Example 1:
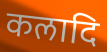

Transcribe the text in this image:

कलादि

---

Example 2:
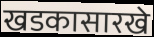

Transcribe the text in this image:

खडकासारखे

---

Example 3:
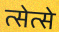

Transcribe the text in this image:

त्सेत्से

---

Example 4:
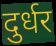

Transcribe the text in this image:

दुर्धर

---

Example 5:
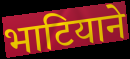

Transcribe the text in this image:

भाटियाने